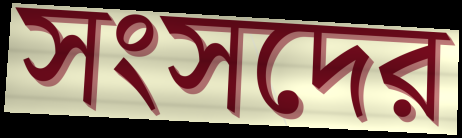
সংসদের